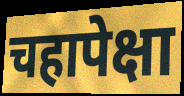
चहापेक्षा